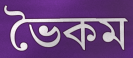
ভৈকম